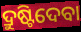
ଦ୍ରୁଷ୍ଟିଦେବା